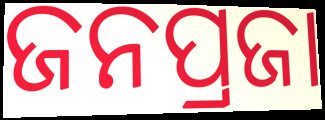
ଜନପ୍ରଜା